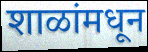
शाळांमधून